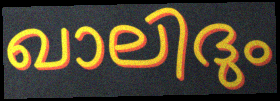
ഖാലിദും